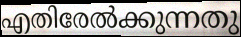
എതിരേൽക്കുന്നതു